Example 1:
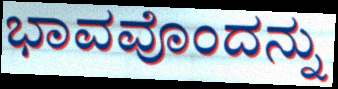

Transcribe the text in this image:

ಭಾವವೊಂದನ್ನು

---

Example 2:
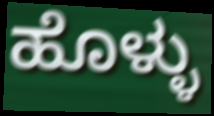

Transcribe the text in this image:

ಹೊಳ್ಳು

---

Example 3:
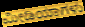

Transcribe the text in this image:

ಮೀಡಿಯಾಗಳು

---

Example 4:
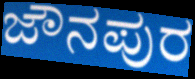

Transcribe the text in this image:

ಜೌನಪುರ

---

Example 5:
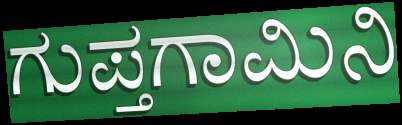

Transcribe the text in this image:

ಗುಪ್ತಗಾಮಿನಿ